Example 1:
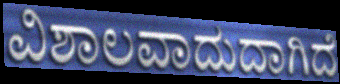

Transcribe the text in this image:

ವಿಶಾಲವಾದುದಾಗಿದೆ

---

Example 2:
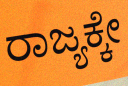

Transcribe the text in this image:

ರಾಜ್ಯಕ್ಕೇ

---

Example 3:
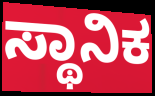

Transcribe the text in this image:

ಸ್ಥಾನಿಕ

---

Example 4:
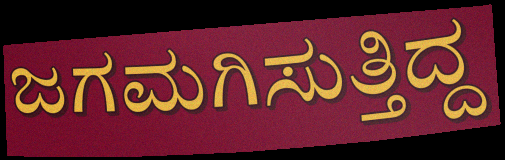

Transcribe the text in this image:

ಜಗಮಗಿಸುತ್ತಿದ್ದ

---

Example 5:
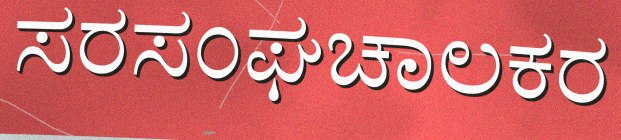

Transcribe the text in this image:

ಸರಸಂಘಚಾಲಕರ